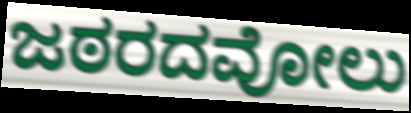
ಜಠರದವೋಲು